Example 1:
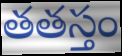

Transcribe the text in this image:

తతస్తం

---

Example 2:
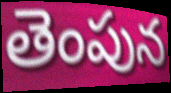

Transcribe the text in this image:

తెంపున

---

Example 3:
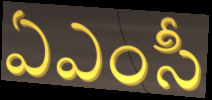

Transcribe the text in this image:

ఏఎంసీ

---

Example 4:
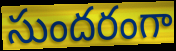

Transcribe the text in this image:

సుందరంగా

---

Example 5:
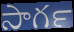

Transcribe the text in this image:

సాగర్‍